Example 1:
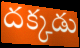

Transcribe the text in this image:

దక్కడు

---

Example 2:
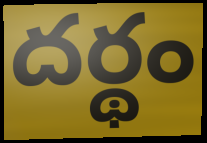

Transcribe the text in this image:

దర్థం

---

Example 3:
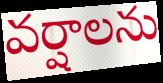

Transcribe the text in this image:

వర్షాలను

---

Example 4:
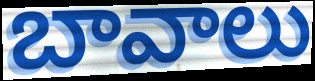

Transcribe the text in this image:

బావాలు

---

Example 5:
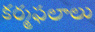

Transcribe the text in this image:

కర్మఫలాలు